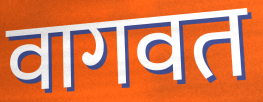
वागवत